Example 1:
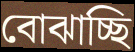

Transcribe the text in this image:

বোঝাচ্ছি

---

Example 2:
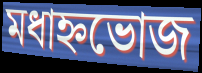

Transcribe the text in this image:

মধাহ্নভোজ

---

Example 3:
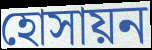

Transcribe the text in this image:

হোসায়ন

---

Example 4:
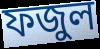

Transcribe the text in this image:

ফজুল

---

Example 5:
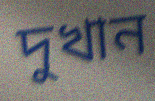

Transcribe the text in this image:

দুখান